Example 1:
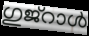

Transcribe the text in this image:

ഗുജ്റാൾ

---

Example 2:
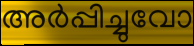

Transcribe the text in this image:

അർപ്പിച്ചുവോ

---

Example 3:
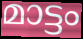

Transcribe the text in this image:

മാട്ടം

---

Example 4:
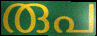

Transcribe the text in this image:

രുപ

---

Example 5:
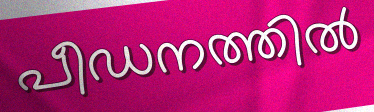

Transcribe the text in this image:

പീഡനത്തിൽ